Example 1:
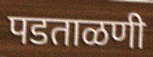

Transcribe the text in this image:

पडताळणी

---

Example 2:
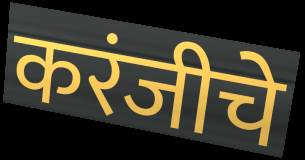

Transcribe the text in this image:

करंजीचे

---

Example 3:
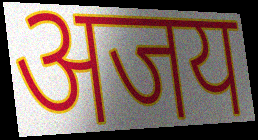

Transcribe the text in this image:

अजय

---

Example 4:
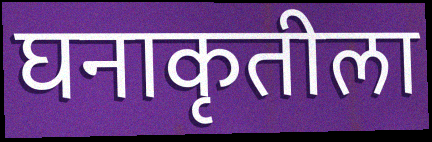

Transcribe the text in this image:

घनाकृतीला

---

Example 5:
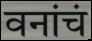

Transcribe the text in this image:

वनांचं